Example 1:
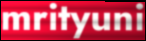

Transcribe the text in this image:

mrityuni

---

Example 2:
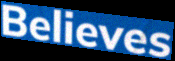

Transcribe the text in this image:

Believes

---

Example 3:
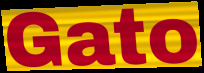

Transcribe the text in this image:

Gato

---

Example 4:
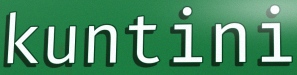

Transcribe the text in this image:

kuntini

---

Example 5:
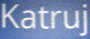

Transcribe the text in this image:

Katruj